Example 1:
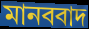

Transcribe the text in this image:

মানববাদ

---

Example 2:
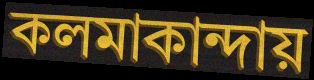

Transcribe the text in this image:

কলমাকান্দায়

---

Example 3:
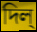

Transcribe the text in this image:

দিল্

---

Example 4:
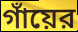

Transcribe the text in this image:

গাঁয়ের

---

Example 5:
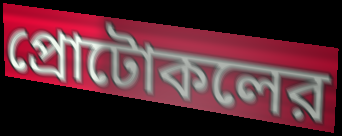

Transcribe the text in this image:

প্রোটোকলের